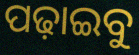
ପଢ଼ାଇବୁ